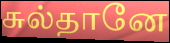
சுல்தானே